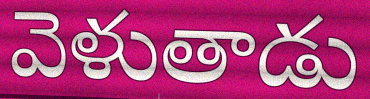
వెళుతాడు